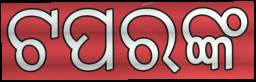
ଟପରଙ୍କ